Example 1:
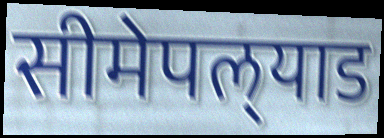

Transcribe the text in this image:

सीमेपल्याड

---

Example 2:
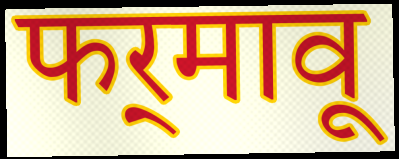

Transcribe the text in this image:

फर्मावू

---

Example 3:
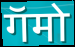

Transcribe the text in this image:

गॅमो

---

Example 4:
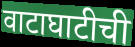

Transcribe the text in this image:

वाटाघाटीची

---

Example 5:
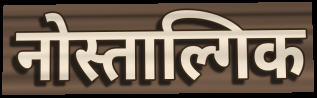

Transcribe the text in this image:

नोस्ताल्गिक